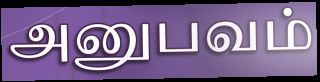
அனுபவம்